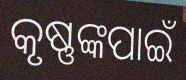
କୃଷ୍ଣଙ୍କପାଇଁ